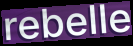
rebelle